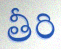
తీరి